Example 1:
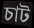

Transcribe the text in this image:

চাট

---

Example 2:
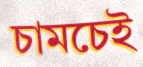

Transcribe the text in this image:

চামচেই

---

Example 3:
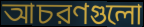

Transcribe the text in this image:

আচরণগুলো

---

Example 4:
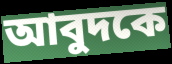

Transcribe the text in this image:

আবুদকে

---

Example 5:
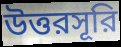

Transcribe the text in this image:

উত্তরসূরি